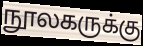
நூலகருக்கு